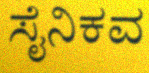
ಸೈನಿಕವ